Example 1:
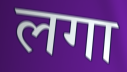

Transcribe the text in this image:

लगा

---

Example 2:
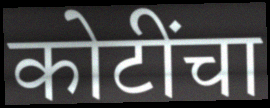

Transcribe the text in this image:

कोटींचा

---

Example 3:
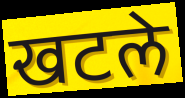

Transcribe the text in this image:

खटले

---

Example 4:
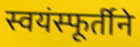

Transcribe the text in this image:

स्वयंस्फूर्तीने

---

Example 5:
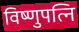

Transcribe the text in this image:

विष्णुपत्नि